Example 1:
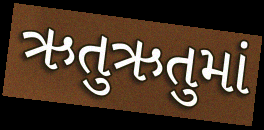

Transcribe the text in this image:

ઋતુઋતુમાં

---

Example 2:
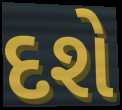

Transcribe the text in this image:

દશે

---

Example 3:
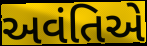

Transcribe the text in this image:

અવંતિએ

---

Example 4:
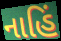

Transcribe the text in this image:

નાહિં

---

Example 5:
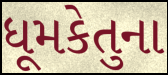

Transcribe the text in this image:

ધૂમકેતુના